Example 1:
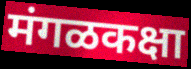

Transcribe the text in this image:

मंगळकक्षा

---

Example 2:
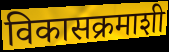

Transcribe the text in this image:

विकासक्रमाशी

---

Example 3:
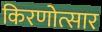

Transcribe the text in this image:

किरणोत्सार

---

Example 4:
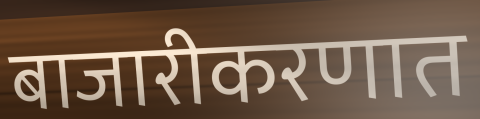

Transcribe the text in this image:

बाजारीकरणात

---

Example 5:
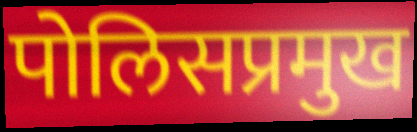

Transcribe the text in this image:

पोलिसप्रमुख